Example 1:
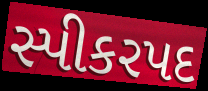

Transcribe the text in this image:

સ્પીકરપદ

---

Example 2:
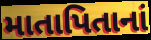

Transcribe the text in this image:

માતાપિતાનાં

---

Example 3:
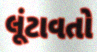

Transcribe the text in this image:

લૂંટાવતો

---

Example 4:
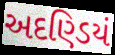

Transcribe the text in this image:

અદણ્ડિયં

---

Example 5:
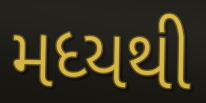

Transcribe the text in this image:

મધ્યથી